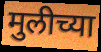
मुलीच्या